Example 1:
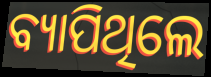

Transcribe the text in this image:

ବ୍ୟାପିଥିଲେ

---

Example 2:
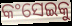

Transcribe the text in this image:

କଂସେଇକୁ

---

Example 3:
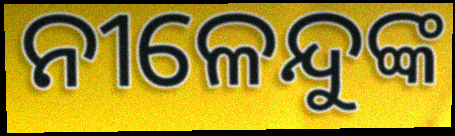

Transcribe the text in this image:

ନୀଳେନ୍ଦୁଙ୍କ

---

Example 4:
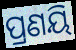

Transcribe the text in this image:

ପ୍ରଣୟି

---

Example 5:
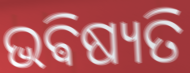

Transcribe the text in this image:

ଭଵିଷ୍ୟତି